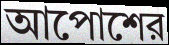
আপোশের